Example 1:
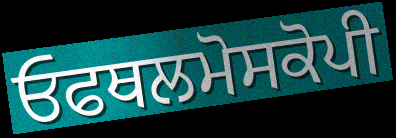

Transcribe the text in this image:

ਓਫਥਲਮੋਸਕੋਪੀ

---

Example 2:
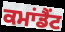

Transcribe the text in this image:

ਕਮਾਂਡੈਂਟ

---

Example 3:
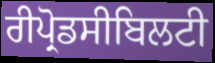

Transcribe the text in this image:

ਰੀਪ੍ਰੋਡਸੀਬਿਲਟੀ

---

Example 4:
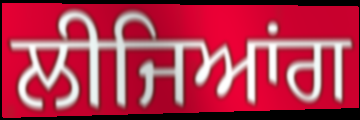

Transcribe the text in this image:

ਲੀਜਿਆਂਗ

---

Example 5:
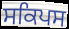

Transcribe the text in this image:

ਸਕਿਪਸ